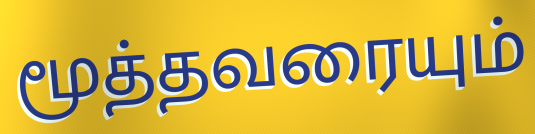
மூத்தவரையும்